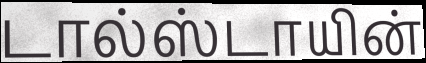
டால்ஸ்டாயின்